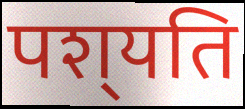
पश्यति